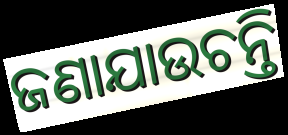
ଜଣାଯାଉଚନ୍ତି